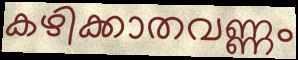
കഴിക്കാതവണ്ണം